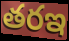
తరఇ